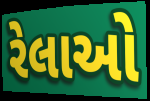
રેલાઓ